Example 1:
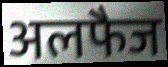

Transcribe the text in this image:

अलफैज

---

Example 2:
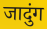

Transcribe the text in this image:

जादुंग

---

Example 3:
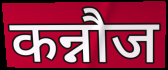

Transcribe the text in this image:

कन्नौज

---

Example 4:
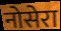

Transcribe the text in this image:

नोसेरा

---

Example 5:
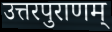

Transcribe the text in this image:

उत्तरपुराणम्